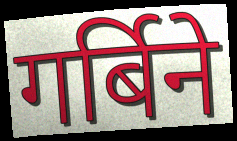
गर्बिने